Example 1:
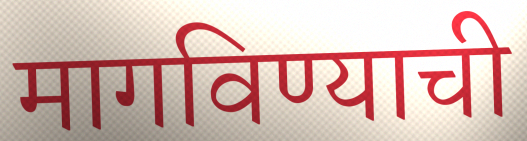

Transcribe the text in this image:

मागविण्याची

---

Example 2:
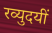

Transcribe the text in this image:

रव्युदयीं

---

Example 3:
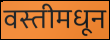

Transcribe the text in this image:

वस्तीमधून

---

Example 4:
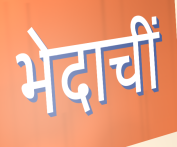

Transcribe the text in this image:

भेदाचीं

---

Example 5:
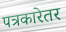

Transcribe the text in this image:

पत्रकारेतर